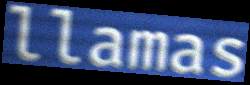
llamas